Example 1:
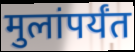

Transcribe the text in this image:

मुलांपर्यंत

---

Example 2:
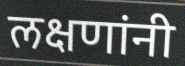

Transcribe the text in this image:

लक्षणांनी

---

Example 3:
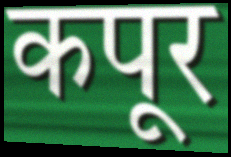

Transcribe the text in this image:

कपूर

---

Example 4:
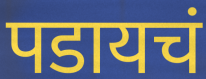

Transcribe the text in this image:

पडायचं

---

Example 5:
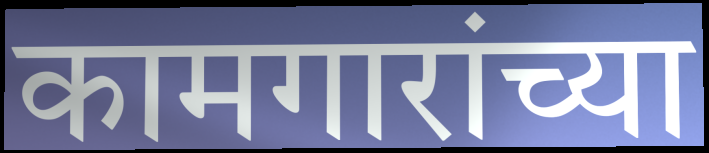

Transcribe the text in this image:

कामगारांच्या